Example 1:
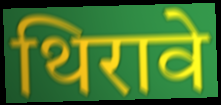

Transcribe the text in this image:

थिरावे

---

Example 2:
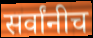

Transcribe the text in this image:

सर्वांनीच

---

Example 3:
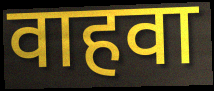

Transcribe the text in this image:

वाहवा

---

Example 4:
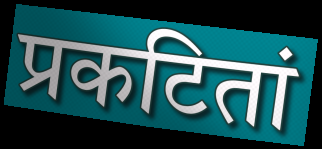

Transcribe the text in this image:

प्रकटितां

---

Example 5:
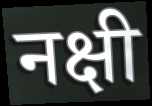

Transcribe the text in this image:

नक्षी